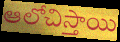
ఆలోచిస్తాయి